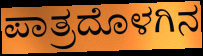
ಪಾತ್ರದೊಳಗಿನ